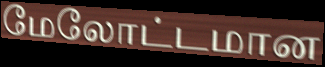
மேலோட்டமான